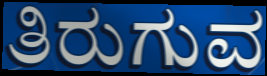
ತಿರುಗುವ